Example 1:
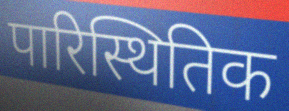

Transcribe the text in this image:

पारिस्थितिक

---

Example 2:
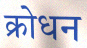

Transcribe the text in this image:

क्रोधन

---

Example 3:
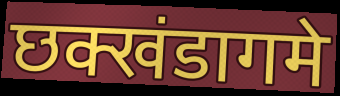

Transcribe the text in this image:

छक्खंडागमे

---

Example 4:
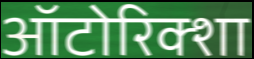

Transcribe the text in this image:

ऑटोरिक्‍शा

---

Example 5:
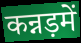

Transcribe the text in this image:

कन्नड़में